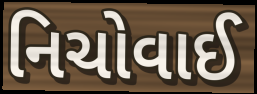
નિચોવાઈ